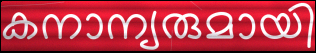
കനാന്യരുമായി